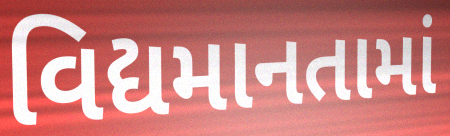
વિદ્યમાનતામાં